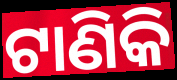
ଟାଣିକି